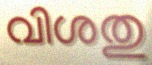
വിശതു